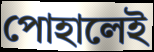
পোহালেই